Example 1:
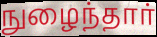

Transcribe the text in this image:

நுழைந்தார்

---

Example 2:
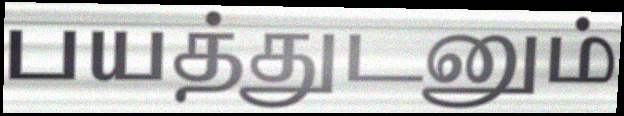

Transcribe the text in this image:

பயத்துடனும்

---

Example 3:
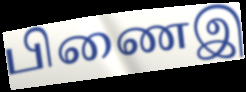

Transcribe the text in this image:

பிணைஇ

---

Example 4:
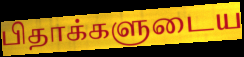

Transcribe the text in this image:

பிதாக்களுடைய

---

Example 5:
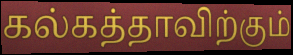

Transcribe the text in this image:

கல்கத்தாவிற்கும்